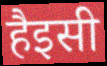
हैइसी